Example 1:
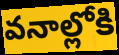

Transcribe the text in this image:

వనాల్లోకి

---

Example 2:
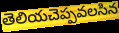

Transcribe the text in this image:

తెలియచెప్పవలసిన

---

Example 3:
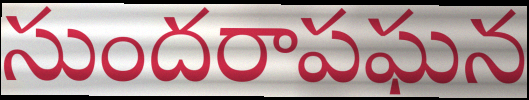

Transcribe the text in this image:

సుందరాపఘన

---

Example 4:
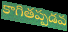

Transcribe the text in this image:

కాగితప్పడవ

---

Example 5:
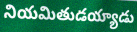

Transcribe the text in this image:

నియమితుడయ్యాడు